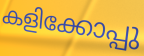
കളിക്കോപ്പു